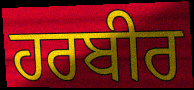
ਹਰਬੀਰ